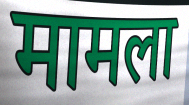
मामला